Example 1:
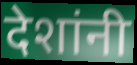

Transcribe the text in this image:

देशांनी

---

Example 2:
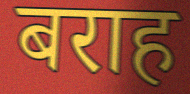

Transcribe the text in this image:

बराह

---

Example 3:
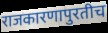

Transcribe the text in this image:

राजकारणापुरतीच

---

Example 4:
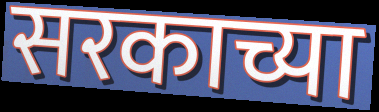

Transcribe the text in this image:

सरकाच्या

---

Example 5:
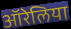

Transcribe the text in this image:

ऑरेलिया